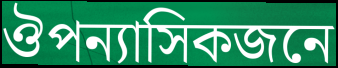
ঔপন্যাসিকজনে